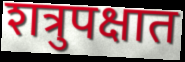
शत्रुपक्षात